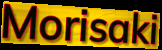
Morisaki